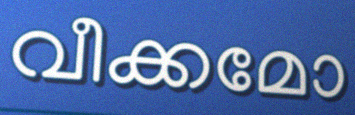
വീക്കമോ